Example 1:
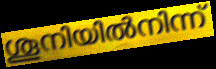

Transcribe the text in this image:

ശൂനിയിൽനിന്ന്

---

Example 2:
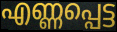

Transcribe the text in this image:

എണ്ണപ്പെട്ട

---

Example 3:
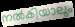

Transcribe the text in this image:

നൽകിയാലും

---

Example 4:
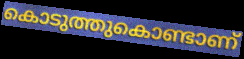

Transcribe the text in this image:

കൊടുത്തുകൊണ്ടാണ്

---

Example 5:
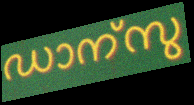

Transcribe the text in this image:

ഡാന്സു